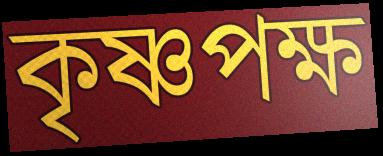
কৃষ্ণপক্ষ